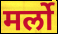
मर्लो